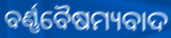
ବର୍ଣ୍ଣବୈଷମ୍ୟବାଦ